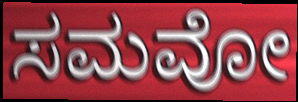
ಸಮವೋ